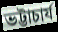
ভট্টাচাৰ্য